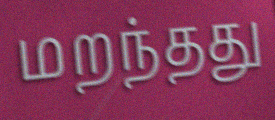
மறந்தது